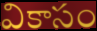
వికాసం